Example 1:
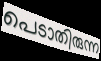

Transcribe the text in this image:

പെടാതിരുന്ന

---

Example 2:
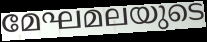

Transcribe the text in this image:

മേഘമലയുടെ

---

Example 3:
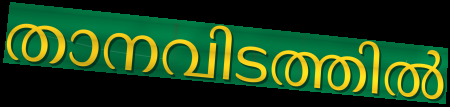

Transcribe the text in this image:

താനവിടത്തിൽ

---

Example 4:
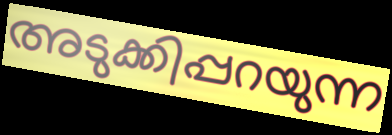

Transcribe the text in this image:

അടുക്കിപ്പറയുന്ന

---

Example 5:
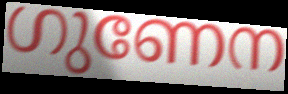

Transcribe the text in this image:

ഗുണേന